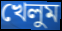
খেলুম